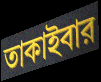
তাকাইবার